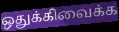
ஒதுக்கிவைக்க